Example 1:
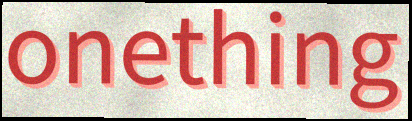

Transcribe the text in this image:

onething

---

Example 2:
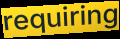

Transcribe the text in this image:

requiring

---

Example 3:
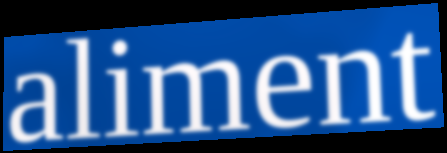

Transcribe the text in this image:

aliment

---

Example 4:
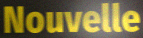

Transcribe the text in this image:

Nouvelle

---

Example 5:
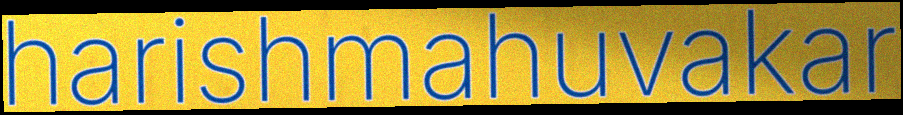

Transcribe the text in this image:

harishmahuvakar